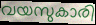
വയസുകാരി